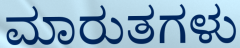
ಮಾರುತಗಳು